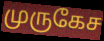
முருகேச